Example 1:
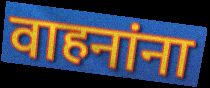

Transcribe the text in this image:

वाहनांना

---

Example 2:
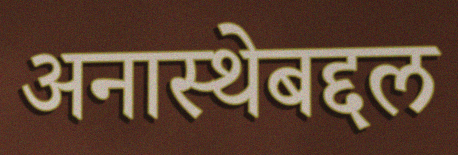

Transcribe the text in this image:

अनास्थेबद्दल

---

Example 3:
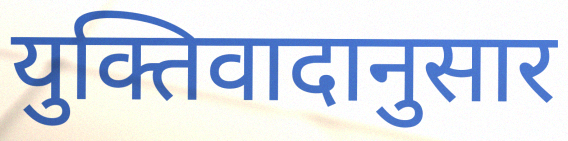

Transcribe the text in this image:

युक्तिवादानुसार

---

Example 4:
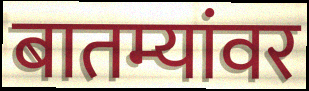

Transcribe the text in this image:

बातम्यांवर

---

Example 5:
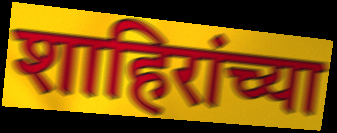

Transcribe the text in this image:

शाहिरांच्या